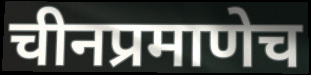
चीनप्रमाणेच